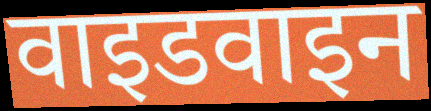
वाइडवाइन